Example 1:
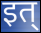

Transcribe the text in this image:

इत्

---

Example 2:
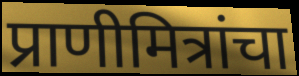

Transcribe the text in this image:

प्राणीमित्रांचा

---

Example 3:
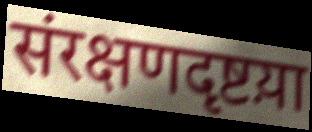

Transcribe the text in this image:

संरक्षणदृष्टय़ा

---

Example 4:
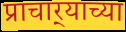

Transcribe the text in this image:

प्राचार्याच्या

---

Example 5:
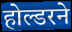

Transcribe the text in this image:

होल्डरने